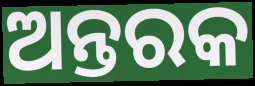
ଅନ୍ତରକ